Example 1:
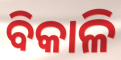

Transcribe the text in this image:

ବିକାଳି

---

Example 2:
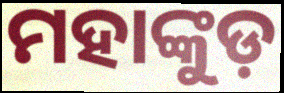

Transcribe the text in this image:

ମହାଙ୍କୁଡ଼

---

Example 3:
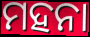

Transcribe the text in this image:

ମହନା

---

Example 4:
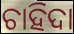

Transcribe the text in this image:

ଚାହିଦା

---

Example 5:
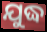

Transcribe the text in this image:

ଯୁଦ୍ଧ